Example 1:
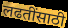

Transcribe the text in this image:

लढतींसाठी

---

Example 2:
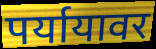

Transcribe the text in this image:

पर्यायावर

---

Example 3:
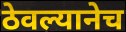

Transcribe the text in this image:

ठेवल्यानेच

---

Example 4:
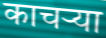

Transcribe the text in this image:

काचऱ्या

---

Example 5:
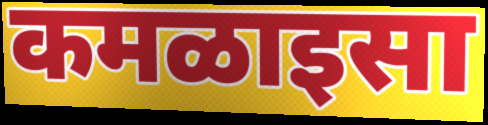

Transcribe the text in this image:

कमळाइसा